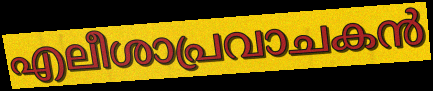
എലീശാപ്രവാചകൻ